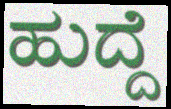
ಹುದ್ದೆ